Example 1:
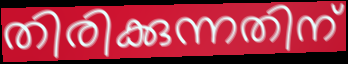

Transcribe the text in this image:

തിരിക്കുന്നതിന്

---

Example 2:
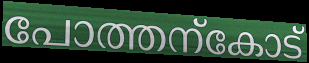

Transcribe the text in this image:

പോത്തന്കോട്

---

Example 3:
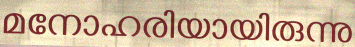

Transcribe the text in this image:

മനോഹരിയായിരുന്നു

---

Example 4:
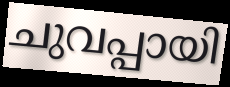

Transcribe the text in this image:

ചുവപ്പായി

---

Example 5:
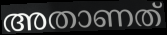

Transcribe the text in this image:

അതാണത്